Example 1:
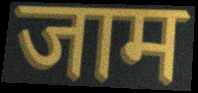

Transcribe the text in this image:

जाम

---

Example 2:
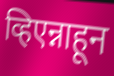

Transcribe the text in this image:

व्हिएन्नाहून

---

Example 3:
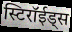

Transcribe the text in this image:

स्टिरॉईड्स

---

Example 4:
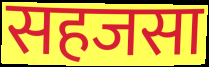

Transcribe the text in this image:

सहजसा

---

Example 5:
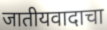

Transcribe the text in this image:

जातीयवादाचा